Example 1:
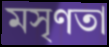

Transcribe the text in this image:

মসৃণতা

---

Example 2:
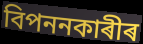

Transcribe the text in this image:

বিপননকাৰীৰ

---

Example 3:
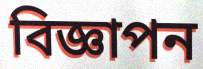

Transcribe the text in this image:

বিজ্ঞাপন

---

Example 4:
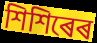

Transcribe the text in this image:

শিশিৰেৰ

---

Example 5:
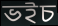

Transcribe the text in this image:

ভইচ